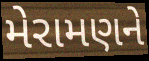
મેરામણને